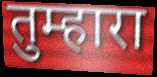
तुम्हारा